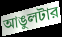
আঙুলটার